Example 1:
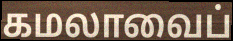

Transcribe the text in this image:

கமலாவைப்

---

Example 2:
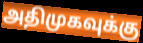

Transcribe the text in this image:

அதிமுகவுக்கு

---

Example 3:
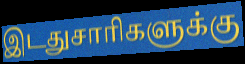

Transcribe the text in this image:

இடதுசாரிகளுக்கு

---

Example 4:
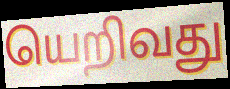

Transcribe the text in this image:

யெறிவது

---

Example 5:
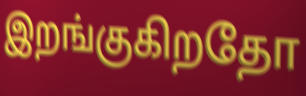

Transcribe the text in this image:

இறங்குகிறதோ